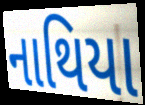
નાથિયા